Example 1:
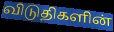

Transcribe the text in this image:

விடுதிகளின்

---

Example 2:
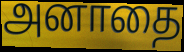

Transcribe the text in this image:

அனாதை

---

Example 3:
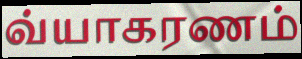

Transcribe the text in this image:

வ்யாகரணம்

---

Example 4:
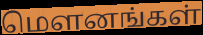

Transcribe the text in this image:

மௌனங்கள்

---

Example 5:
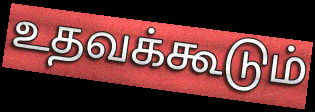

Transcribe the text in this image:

உதவக்கூடும்